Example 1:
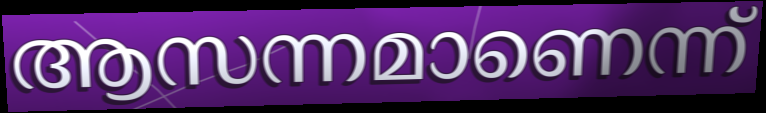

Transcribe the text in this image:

ആസന്നമാണെന്ന്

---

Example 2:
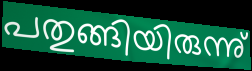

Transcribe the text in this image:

പതുങ്ങിയിരുന്നു്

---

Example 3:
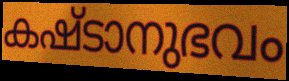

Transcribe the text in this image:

കഷ്ടാനുഭവം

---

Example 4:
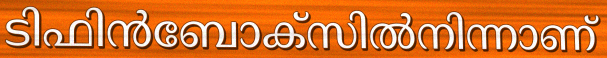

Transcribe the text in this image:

ടിഫിൻബോക്സിൽനിന്നാണ്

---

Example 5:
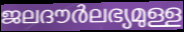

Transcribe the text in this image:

ജലദൗർലഭ്യമുള്ള